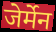
जेर्मेन